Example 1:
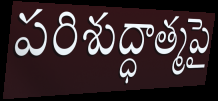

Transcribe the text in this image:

పరిశుద్ధాత్మపై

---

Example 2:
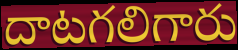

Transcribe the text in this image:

దాటగలిగారు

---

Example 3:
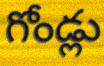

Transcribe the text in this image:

గోండ్లు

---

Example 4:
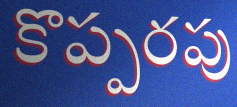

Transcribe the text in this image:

కొప్పరపు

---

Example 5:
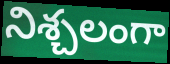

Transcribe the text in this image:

నిశ్చలంగా